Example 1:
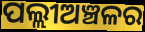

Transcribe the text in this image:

ପଲ୍ଲୀଅଞ୍ଚଳର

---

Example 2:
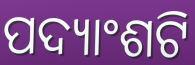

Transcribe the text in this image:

ପଦ୍ୟାଂଶଟି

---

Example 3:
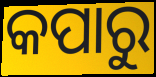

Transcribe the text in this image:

କପାରୁ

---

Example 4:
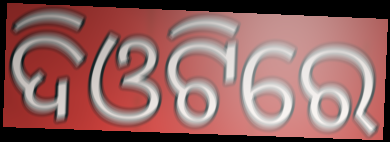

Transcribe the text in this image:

ଦିଓଟିରେ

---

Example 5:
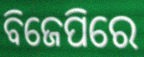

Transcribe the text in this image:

ବିଜେପିରେ